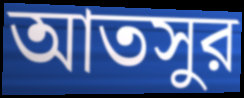
আতসুর